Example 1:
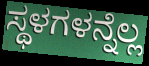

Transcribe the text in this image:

ಸ್ಥಳಗಳನ್ನೆಲ್ಲ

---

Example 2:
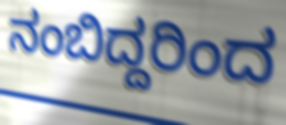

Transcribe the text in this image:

ನಂಬಿದ್ದರಿಂದ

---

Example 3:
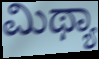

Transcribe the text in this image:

ಮಿಥ್ಯಾ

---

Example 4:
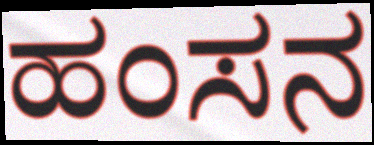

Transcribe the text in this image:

ಹಂಸನ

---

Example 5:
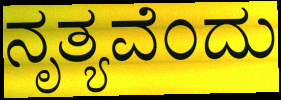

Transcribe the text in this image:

ನೃತ್ಯವೆಂದು